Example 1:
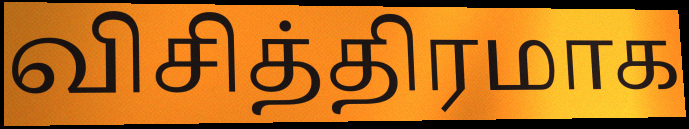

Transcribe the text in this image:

விசித்திரமாக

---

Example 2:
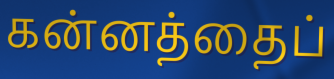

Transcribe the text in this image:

கன்னத்தைப்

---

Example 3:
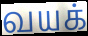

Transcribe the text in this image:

வயக்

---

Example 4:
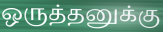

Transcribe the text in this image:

ஒருத்தனுக்கு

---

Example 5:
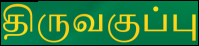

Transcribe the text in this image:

திருவகுப்பு